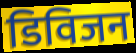
डिविजन